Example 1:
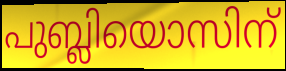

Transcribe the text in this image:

പുബ്ലിയൊസിന്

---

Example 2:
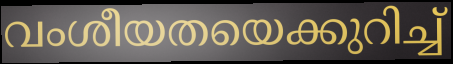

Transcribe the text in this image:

വംശീയതയെക്കുറിച്ച്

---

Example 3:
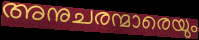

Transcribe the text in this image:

അനുചരന്മാരെയും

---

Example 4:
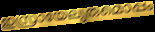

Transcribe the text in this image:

ഇസ്രായേല്യരുമൊപ്പം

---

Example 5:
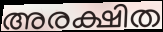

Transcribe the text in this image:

അരക്ഷിത